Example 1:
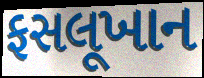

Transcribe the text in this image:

ફસલૂખાન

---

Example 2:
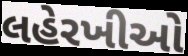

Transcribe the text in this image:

લહેરખીઓ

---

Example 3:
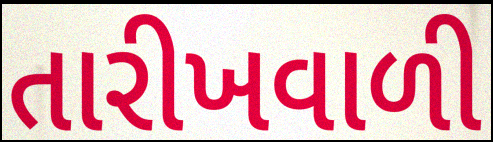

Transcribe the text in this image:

તારીખવાળી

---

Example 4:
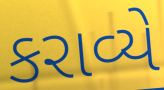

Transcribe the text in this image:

કરાવ્યે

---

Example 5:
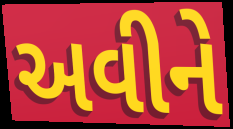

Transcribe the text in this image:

અવીને